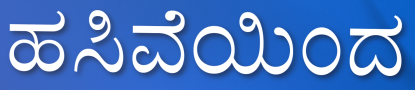
ಹಸಿವೆಯಿಂದ